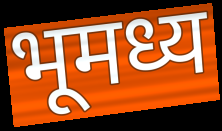
भूमध्य